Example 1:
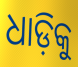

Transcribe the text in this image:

ଧାଡ଼ିକୁ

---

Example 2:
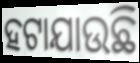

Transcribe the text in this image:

ହଟାଯାଉଛି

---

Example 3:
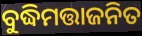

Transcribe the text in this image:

ବୁଦ୍ଧିମତ୍ତାଜନିତ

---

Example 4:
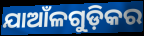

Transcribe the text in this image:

ଯାଆଁଳଗୁଡ଼ିକର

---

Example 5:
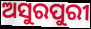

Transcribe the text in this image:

ଅସୁରପୁରୀ